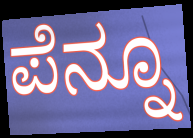
ಪೆನ್ನೂ